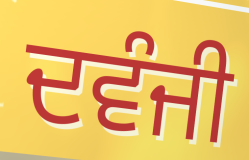
ਦਵੰਜੀ